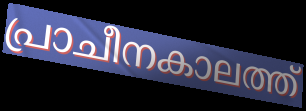
പ്രാചീനകാലത്ത്